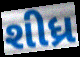
શીધ્ર